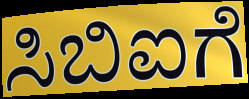
ಸಿಬಿಐಗೆ